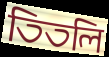
তিতলি